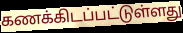
கணக்கிடப்பட்டுள்ளது